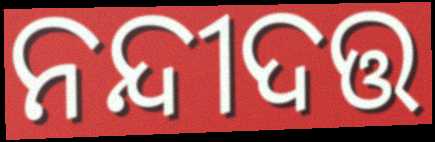
ନନ୍ଦୀଦତ୍ତ